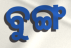
ବୁଙ୍ଗ